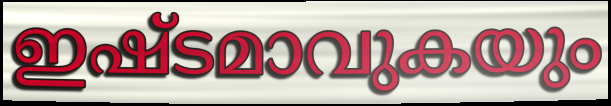
ഇഷ്ടമാവുകയും